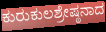
ಕುರುಕುಲಶ್ರೇಷ್ಠನಾದ